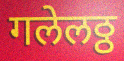
गलेलठ्ठ